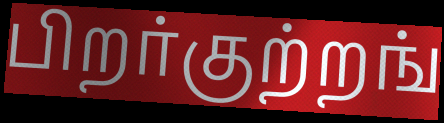
பிறர்குற்றங்